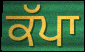
ਕੱਪਾ